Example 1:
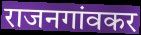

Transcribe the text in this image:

राजनगांवकर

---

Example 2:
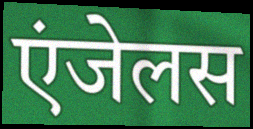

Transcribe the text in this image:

एंजेलस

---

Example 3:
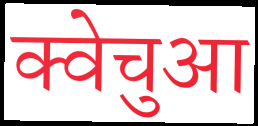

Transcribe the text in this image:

क्वेचुआ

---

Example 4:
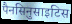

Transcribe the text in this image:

पैनसिनुसाइटिस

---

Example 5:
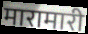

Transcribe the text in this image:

मारामारी